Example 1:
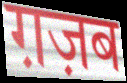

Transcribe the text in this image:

ग़ज़ब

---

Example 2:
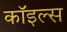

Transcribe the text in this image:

कॉइल्स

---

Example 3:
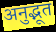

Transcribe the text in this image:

अनुद्भूत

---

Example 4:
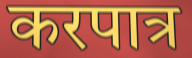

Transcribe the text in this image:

करपात्र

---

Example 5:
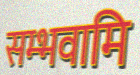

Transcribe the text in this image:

सम्भवामि